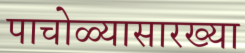
पाचोळ्यासारख्या